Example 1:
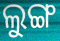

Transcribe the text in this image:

ଲୁଙ୍ଗ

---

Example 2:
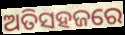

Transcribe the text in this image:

ଅତିସହଜରେ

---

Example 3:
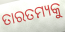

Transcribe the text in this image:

ତାରତମ୍ୟକୁ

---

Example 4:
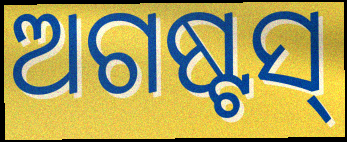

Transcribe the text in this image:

ଅଗଷ୍ଟସ୍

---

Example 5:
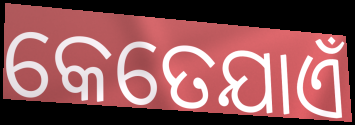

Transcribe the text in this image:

କେତେଯାଏଁ